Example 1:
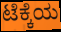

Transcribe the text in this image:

ಟೆಕ್ಕೆಯ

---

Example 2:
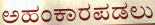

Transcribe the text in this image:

ಅಹಂಕಾರಪಡಲು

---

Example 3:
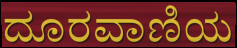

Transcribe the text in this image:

ದೂರವಾಣಿಯ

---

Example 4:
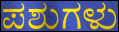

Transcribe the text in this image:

ಪಶುಗಳು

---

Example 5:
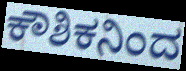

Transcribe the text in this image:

ಕೌಶಿಕನಿಂದ